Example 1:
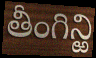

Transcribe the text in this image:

తీంగిన్ఱి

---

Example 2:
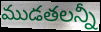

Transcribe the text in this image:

ముడతలన్నీ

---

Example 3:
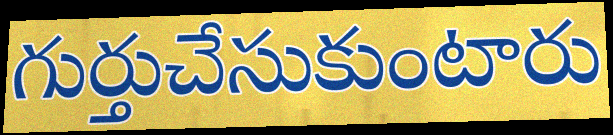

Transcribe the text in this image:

గుర్తుచేసుకుంటారు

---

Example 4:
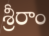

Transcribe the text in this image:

శ్రీరాం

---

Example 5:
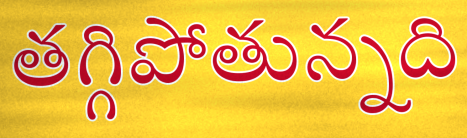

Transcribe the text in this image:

తగ్గిపోతున్నది